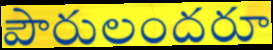
పౌరులందరూ